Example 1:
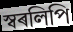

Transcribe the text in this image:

স্বৰলিপি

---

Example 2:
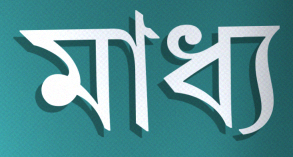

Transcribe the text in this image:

মাধ্য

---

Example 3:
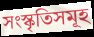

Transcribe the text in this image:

সংস্কৃতিসমূহ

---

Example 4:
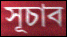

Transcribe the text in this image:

সূচাব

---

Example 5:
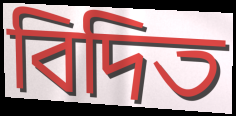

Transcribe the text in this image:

বিদিত